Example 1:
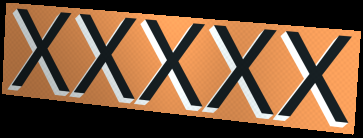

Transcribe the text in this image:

XXXXX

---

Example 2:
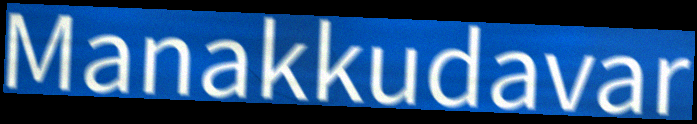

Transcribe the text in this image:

Manakkudavar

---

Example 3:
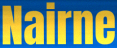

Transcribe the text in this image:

Nairne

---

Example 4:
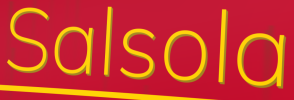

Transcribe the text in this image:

Salsola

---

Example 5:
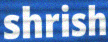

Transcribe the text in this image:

shrish